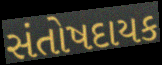
સંતોષદાયક